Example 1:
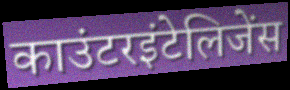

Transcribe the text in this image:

काउंटरइंटेलिजेंस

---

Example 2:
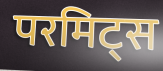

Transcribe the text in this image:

परमिट्स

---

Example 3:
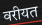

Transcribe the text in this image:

वरीयत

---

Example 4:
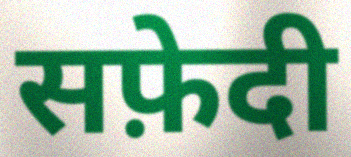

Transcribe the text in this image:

सफ़ेदी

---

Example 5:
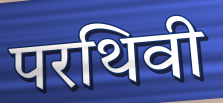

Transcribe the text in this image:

परथिवी